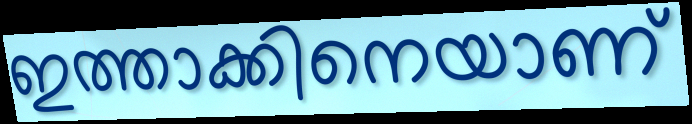
ഇത്താക്കിനെയാണ്